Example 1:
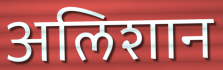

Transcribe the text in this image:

अलिशान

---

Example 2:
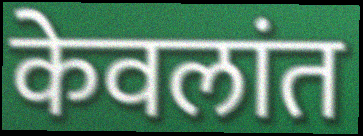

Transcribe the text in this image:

केवलांत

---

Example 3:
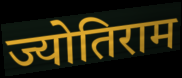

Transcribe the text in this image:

ज्योतिराम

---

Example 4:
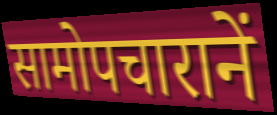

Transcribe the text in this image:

सामोपचारानें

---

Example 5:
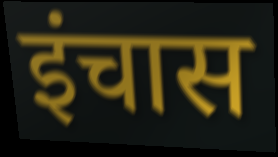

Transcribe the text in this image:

इंचास